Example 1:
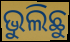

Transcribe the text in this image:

ଭୁଲିଛୁ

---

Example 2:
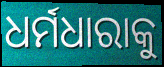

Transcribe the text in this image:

ଧର୍ମଧାରାକୁ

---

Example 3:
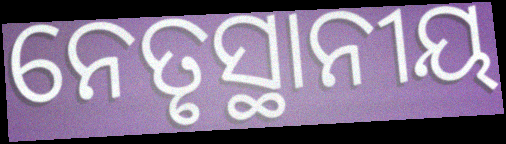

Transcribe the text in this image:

ନେତୃସ୍ଥାନୀୟ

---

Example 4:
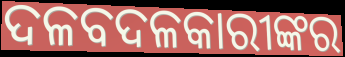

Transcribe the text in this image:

ଦଳବଦଳକାରୀଙ୍କର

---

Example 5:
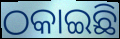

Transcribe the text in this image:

ଠକାଇଛି